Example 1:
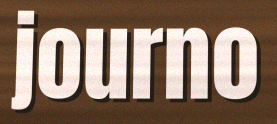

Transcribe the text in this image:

journo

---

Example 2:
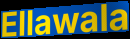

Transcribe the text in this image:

Ellawala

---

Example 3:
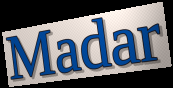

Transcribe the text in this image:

Madar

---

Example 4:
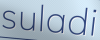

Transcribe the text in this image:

suladi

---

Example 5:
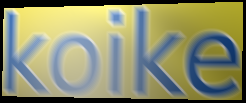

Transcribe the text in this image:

koike